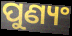
ପୁଣ୍ୟଂ